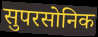
सुपरसोनिक